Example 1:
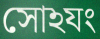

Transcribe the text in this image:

সোঽযং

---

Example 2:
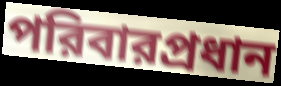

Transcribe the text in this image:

পরিবারপ্রধান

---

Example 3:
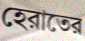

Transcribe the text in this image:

হেরাতের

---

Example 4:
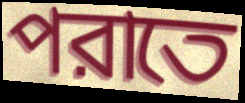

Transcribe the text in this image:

পরাতে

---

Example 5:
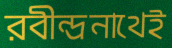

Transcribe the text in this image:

রবীন্দ্রনাথেই